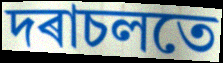
দৰাচলতে